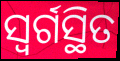
ସ୍ୱର୍ଗସ୍ଥିତ